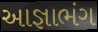
આજ્ઞાભંગ